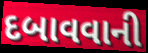
દબાવવાની